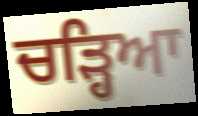
ਚਡ਼੍ਹਿਆ